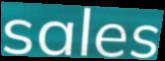
sales